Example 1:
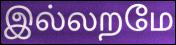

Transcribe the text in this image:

இல்லறமே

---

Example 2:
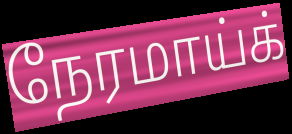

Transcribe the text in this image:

நேரமாய்க்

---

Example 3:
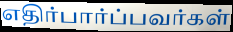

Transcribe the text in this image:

எதிர்பார்ப்பவர்கள்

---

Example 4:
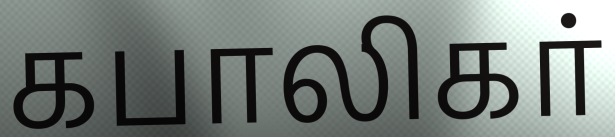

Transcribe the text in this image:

கபாலிகர்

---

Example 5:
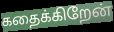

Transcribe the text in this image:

கதைக்கிறேன்